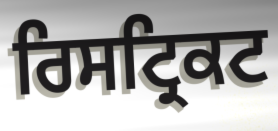
ਰਿਸਟ੍ਰਿਕਟ